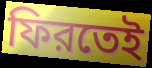
ফিরতেই